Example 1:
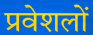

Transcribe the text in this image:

प्रवेशलों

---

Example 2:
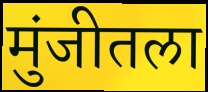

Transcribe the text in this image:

मुंजीतला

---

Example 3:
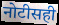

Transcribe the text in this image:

नोटीसही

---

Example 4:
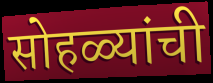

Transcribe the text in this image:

सोहळ्यांची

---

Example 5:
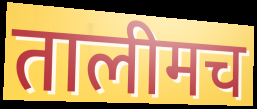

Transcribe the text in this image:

तालीमच